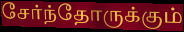
சேர்ந்தோருக்கும்